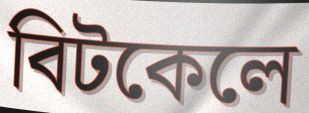
বিটকেলে